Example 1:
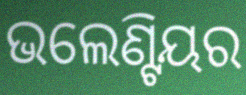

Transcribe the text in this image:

ଭଲେଣ୍ଟିୟର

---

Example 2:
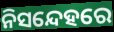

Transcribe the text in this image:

ନିସନ୍ଦେହରେ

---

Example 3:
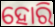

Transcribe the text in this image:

ହୋରି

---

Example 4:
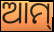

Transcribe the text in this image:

ଆମ୍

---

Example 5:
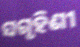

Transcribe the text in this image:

ସଗୃହିଣୀ